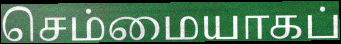
செம்மையாகப்